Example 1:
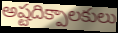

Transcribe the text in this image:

అష్టదిక్పాలకులు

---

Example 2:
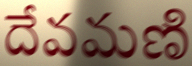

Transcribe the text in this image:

దేవమణి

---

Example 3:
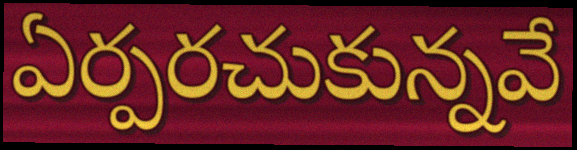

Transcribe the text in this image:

ఏర్పరచుకున్నవే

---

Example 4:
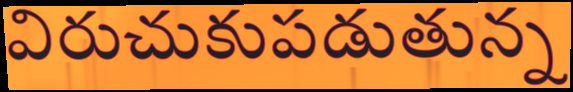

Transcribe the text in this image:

విరుచుకుపడుతున్న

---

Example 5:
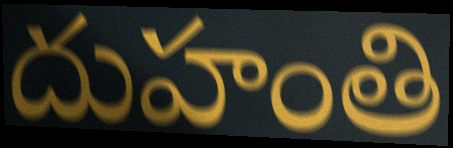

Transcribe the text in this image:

దుహంతి